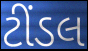
ટીંડલ